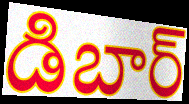
డిబార్